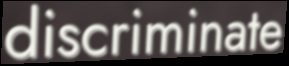
discriminate